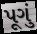
પૂગું